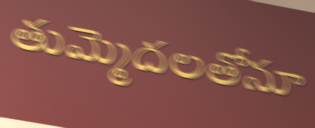
తుమ్మెదలతోనూ